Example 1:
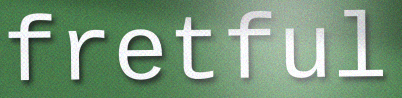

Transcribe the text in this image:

fretful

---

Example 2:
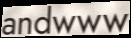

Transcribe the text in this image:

andwww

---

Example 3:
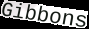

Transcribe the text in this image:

Gibbons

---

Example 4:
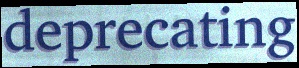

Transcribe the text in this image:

deprecating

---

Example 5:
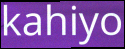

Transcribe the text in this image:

kahiyo